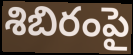
శిబిరంపై